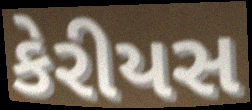
કેરીયસ